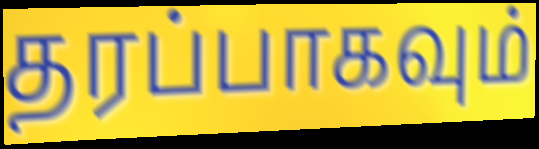
தரப்பாகவும்